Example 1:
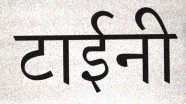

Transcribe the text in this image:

टाईनी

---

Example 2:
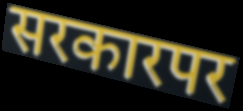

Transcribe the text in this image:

सरकारपर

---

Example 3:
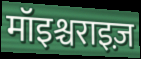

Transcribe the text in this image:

मॉइश्चराइज़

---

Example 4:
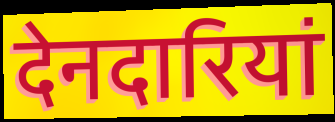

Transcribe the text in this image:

देनदारियां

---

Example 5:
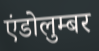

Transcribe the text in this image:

एंडोलुम्बर